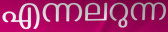
എന്നലറുന്ന